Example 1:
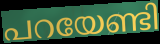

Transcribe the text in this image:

പറയേണ്ടി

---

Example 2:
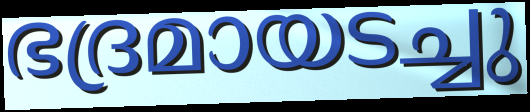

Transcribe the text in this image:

ഭദ്രമായടച്ചു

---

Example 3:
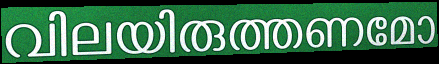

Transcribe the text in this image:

വിലയിരുത്തണമോ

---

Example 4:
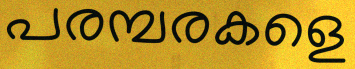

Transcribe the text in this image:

പരമ്പരകളെ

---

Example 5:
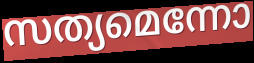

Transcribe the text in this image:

സത്യമെന്നോ